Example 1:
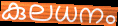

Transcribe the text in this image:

കുലധനം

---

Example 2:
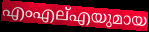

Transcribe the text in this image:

എംഎല്എയുമായ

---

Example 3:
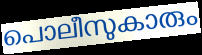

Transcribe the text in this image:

പൊലീസുകാരും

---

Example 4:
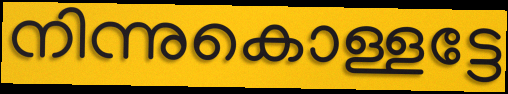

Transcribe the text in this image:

നിന്നുകൊള്ളട്ടേ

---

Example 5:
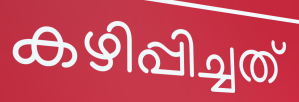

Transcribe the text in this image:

കഴിപ്പിച്ചത്